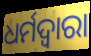
ଧର୍ମଦ୍ୱାରା